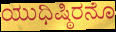
ಯುಧಿಷ್ಠಿರನೊ